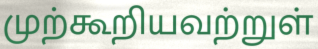
முற்கூறியவற்றுள்